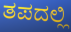
ತಪದಲ್ಲಿ